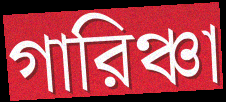
গারিঞ্চা